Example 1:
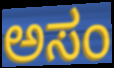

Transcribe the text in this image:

ಅಸಂ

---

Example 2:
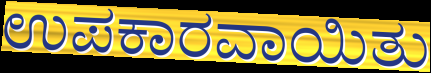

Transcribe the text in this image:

ಉಪಕಾರವಾಯಿತು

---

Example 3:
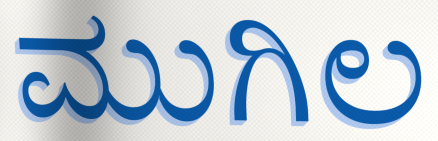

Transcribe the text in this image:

ಮುಗಿಲ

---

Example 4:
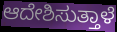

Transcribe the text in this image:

ಆದೇಶಿಸುತ್ತಾಳೆ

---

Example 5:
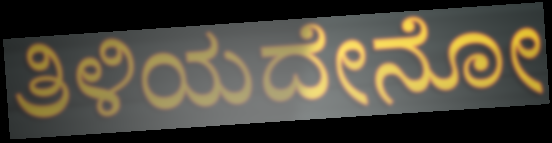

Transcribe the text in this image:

ತಿಳಿಯದೇನೋ